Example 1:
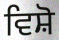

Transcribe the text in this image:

ਵਿਸ਼ੋ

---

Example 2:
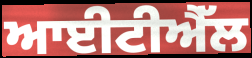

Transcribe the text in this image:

ਆਈਟੀਐੱਲ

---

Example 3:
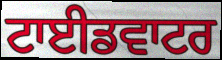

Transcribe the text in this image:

ਟਾਈਡਵਾਟਰ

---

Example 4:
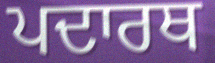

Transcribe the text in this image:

ਪਦਾਰਥ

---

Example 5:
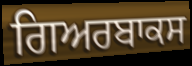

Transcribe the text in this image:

ਗਿਅਰਬਾਕਸ